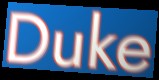
Duke